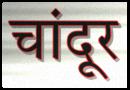
चांदूर